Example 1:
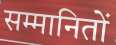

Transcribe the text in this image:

सम्मानितों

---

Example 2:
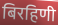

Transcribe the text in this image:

बिरहिणी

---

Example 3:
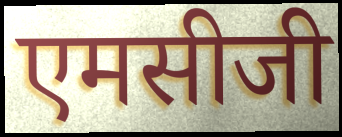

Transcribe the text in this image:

एमसीजी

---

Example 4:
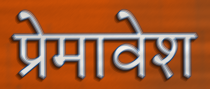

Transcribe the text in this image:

प्रेमावेश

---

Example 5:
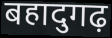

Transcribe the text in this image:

बहादुगढ़